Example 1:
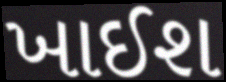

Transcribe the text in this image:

ખાઈશ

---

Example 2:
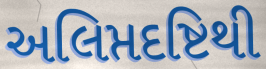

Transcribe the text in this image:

અલિપ્તદષ્ટિથી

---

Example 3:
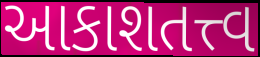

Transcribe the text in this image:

આકાશતત્ત્વ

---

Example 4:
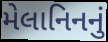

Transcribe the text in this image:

મેલાનિનનું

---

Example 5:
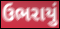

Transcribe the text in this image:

ઉભરાયું